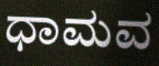
ಧಾಮವ